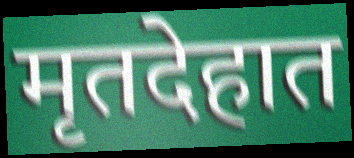
मृतदेहात